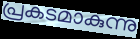
പ്രകടമാകുന്നു